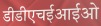
डीडीएचईआईओ